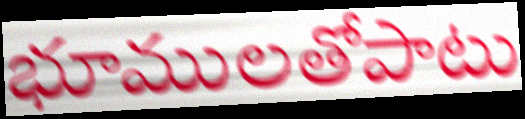
భూములతోపాటు